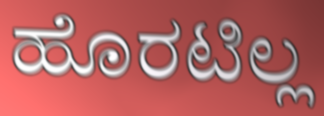
ಹೊರಟಿಲ್ಲ